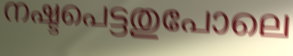
നഷ്ടപെട്ടതുപോലെ